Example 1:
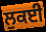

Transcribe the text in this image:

ਲੁਕਈ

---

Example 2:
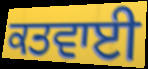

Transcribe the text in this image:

ਕਤਵਾਈ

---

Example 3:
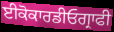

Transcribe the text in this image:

ਈਕੋਕਾਰਡੀਓਗ੍ਰਾਫੀ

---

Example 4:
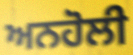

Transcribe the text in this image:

ਅਨਹੋਲੀ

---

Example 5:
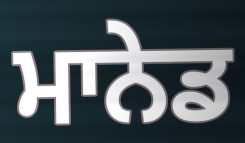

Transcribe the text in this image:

ਮਾਨੇਡ